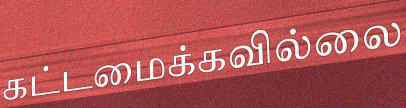
கட்டமைக்கவில்லை